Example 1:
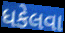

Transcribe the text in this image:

ધકેલવા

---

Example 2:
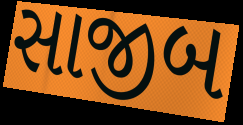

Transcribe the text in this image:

સાજીબ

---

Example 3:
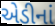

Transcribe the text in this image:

એડીનાં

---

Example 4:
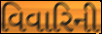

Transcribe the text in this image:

વિવારિની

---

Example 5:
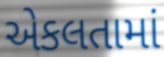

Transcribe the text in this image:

એકલતામાં